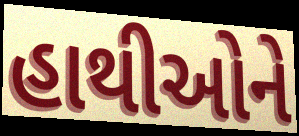
હાથીઓને